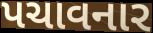
પચાવનાર